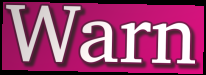
Warn